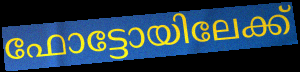
ഫോട്ടോയിലേക്ക്